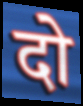
दो